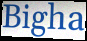
Bigha